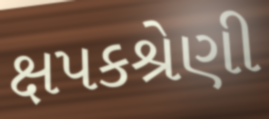
ક્ષપકશ્રેણી